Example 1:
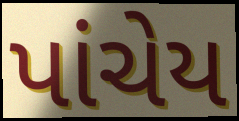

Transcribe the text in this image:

પાંચેય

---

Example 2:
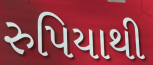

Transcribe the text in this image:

રુપિયાથી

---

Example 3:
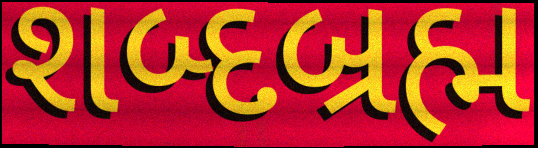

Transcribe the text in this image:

શબ્દબ્રહ્મ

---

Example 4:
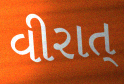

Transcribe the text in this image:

વીરાત્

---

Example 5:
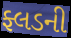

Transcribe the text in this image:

ફ્લડની